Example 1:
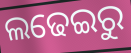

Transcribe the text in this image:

ଲଢେଇରୁ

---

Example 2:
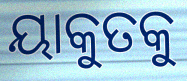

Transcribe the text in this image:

ୟାକୁତକୁ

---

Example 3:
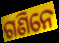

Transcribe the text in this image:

ଗଣିନେ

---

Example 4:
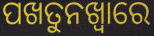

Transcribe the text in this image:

ପଖତୁନଖ୍ୱାରେ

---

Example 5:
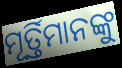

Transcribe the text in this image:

ମୂର୍ତ୍ତିମାନଙ୍କୁ